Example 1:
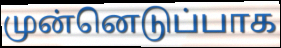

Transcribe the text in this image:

முன்னெடுப்பாக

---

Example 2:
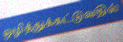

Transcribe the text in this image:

ஒழித்துக்கட்டுவதில்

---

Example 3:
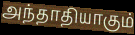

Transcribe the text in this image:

அந்தாதியாகும்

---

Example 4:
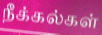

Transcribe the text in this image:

நீக்கல்கள்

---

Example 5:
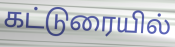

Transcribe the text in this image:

கட்டுரையில்